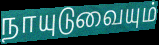
நாயுடுவையும்